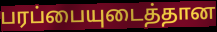
பரப்பையுடைத்தான